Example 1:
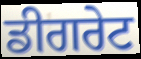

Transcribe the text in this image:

ਡੀਗਰੇਟ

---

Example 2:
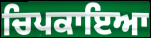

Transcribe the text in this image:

ਚਿਪਕਾਇਆ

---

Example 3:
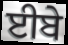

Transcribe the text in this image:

ਈਬੇ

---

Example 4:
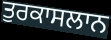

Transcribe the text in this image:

ਤੁਰਕਾਸਲਾਨ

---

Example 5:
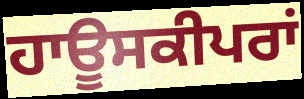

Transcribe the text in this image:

ਹਾਊਸਕੀਪਰਾਂ